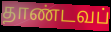
தாண்டவப்